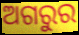
ଅଗରୁର